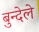
बुन्देले